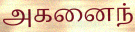
அகனைந்